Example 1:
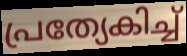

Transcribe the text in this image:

പ്രത്യേകിച്ച്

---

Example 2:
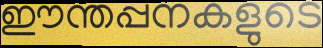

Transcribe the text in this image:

ഈന്തപ്പനകളുടെ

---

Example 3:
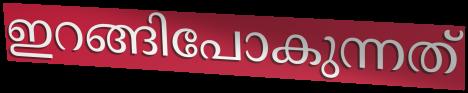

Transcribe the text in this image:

ഇറങ്ങിപോകുന്നത്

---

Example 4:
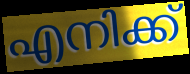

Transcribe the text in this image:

എനിക്ക്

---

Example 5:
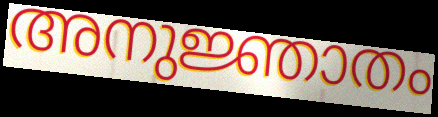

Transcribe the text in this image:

അനുജ്ഞാതം